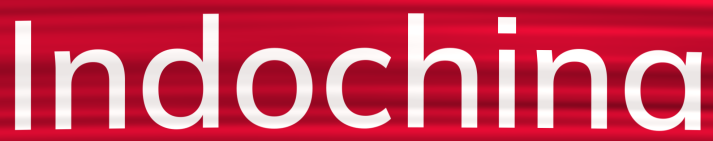
Indochina